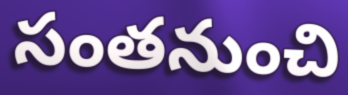
సంతనుంచి